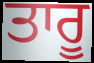
ਤਾਰੂ